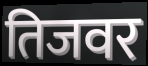
तिजवर